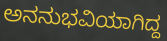
ಅನನುಭವಿಯಾಗಿದ್ದ